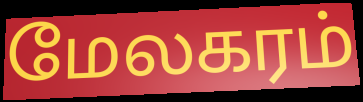
மேலகரம்